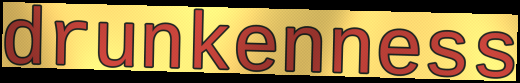
drunkenness